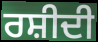
ਰਸ਼ੀਦੀ